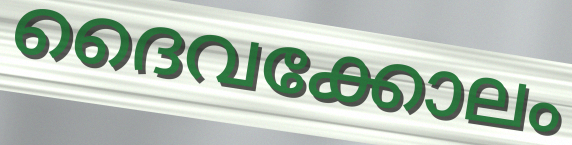
ദൈവക്കോലം